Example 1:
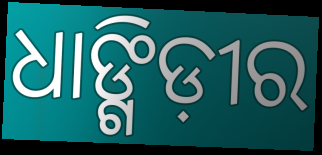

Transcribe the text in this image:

ଧାଙ୍ଗିଡ଼ୀର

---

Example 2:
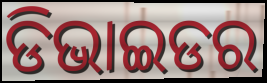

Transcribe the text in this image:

ଡିଭାଇଡର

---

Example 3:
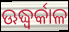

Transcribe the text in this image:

ଊଦ୍ଧ୍ୱର୍କାଳ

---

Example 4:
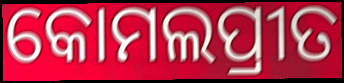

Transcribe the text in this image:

କୋମଲପ୍ରୀତ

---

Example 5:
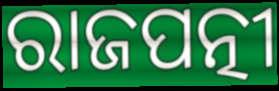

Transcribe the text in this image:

ରାଜପତ୍ନୀ